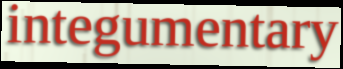
integumentary